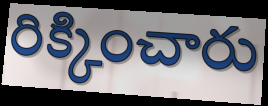
రిక్కించారు